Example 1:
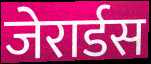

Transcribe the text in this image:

जेरार्डस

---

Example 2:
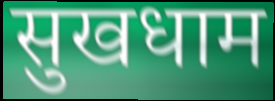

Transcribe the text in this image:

सुखधाम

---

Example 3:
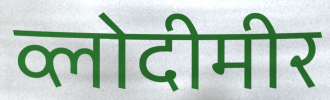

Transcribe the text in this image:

व्लोदीमीर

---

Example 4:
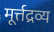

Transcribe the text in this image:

मूर्त्तद्रव्य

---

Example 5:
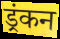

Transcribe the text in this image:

ड्रंकन